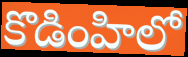
కొడింహిలో